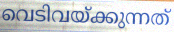
വെടിവയ്ക്കുന്നത്